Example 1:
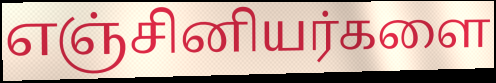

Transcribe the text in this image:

எஞ்சினியர்களை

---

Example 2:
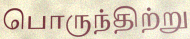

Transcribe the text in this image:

பொருந்திற்று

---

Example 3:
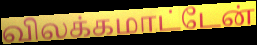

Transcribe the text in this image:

விலக்கமாட்டேன்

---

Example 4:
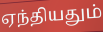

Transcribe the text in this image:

ஏந்தியதும்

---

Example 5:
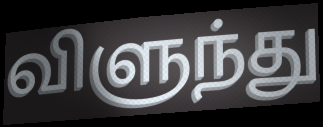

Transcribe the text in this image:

விளுந்து